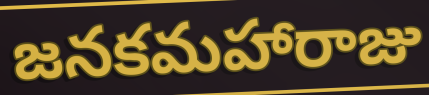
జనకమహారాజు